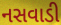
નસવાડી